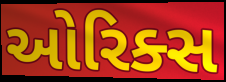
ઓરિક્સ